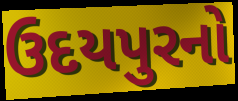
ઉદયપુરનો